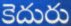
కెదురు